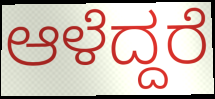
ಆಳೆದ್ದರೆ